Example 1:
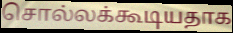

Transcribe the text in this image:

சொல்லக்கூடியதாக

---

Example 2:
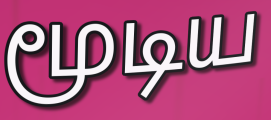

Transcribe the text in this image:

மூடிய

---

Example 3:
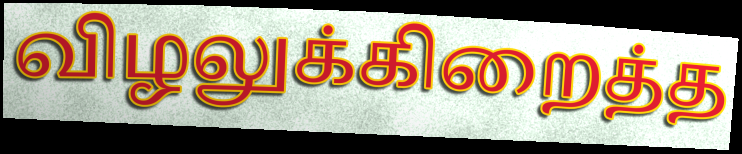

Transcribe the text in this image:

விழலுக்கிறைத்த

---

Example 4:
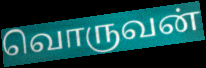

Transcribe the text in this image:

வொருவன்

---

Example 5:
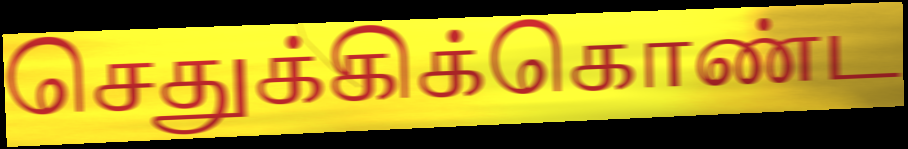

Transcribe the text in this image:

செதுக்கிக்கொண்ட